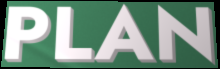
PLAN